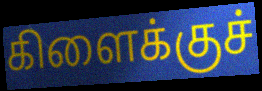
கிளைக்குச்